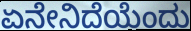
ಏನೇನಿದೆಯೆಂದು